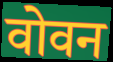
वोवन